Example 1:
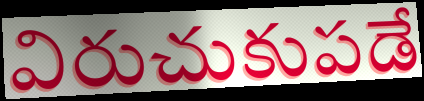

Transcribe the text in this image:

విరుచుకుపడే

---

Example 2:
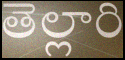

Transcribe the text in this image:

తెల్లారి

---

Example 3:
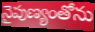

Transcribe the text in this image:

నైపుణ్యంతోను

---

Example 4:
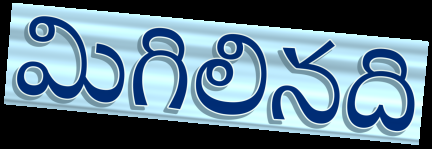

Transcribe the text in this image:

మిగిలినది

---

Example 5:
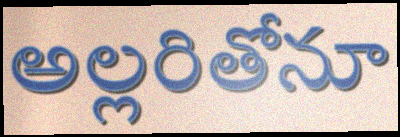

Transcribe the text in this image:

అల్లరితోనూ